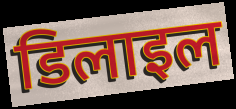
डिलाइल